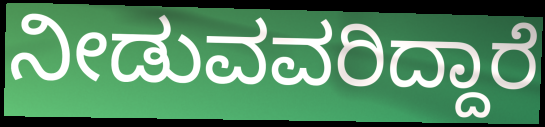
ನೀಡುವವರಿದ್ದಾರೆ